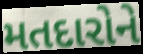
મતદારોને